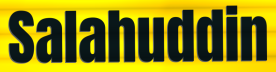
Salahuddin